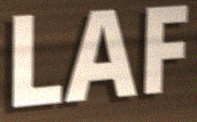
LAF